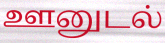
ஊனுடல்